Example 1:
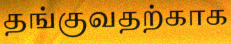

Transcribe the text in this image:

தங்குவதற்காக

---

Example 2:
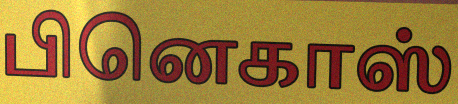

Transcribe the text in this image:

பினெகாஸ்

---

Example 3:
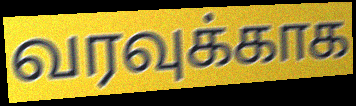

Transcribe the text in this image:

வரவுக்காக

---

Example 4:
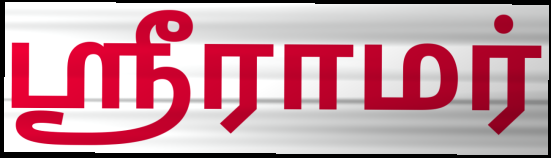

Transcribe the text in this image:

ஶ்ரீராமர்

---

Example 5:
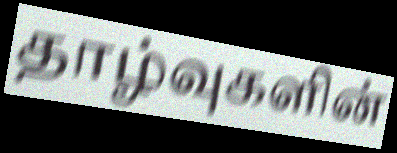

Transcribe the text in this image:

தாழ்வுகளின்